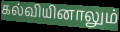
கல்வியினாலும்